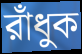
রাঁধুক